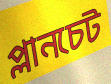
প্লানচেট